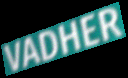
VADHER